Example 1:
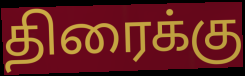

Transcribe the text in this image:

திரைக்கு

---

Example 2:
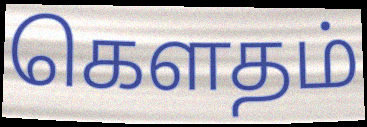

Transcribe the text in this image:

கௌதம்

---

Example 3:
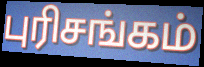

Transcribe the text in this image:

புரிசங்கம்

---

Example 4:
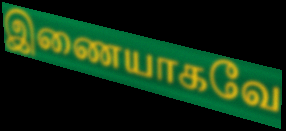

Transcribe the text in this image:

இணையாகவே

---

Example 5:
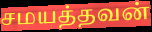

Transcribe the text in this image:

சமயத்தவன்